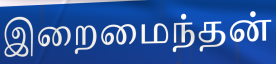
இறைமைந்தன்